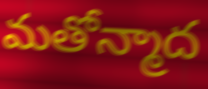
మతోన్మాద